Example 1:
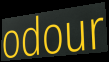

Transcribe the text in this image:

odour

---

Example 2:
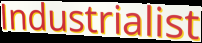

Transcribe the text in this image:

Industrialist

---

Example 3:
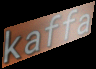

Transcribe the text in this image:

kaffa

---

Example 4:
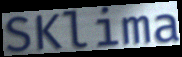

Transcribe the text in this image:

SKlima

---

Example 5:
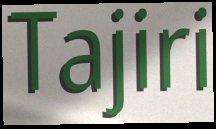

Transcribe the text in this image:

Tajiri